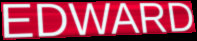
EDWARD